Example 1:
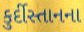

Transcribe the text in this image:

કુર્દીસ્તાનના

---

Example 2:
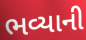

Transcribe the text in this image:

ભવ્યાની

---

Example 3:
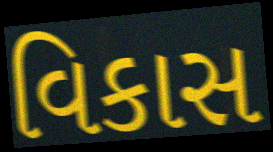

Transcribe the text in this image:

વિકાસ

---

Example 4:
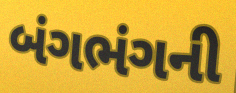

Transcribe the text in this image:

બંગભંગની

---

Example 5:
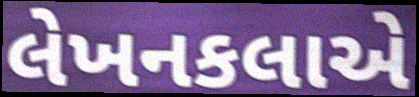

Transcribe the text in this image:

લેખનકલાએ